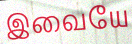
இவையே